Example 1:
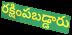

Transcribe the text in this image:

రక్షింపబడ్డారు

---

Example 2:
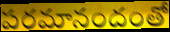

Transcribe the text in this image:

పరమానందంతో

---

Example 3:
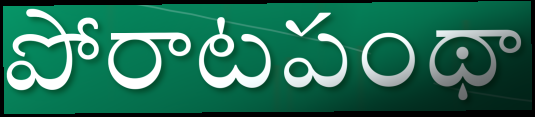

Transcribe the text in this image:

పోరాటపంథా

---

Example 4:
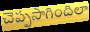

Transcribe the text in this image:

చెప్పసాగిందిలా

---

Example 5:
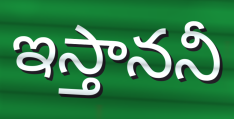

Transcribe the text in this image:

ఇస్తాననీ